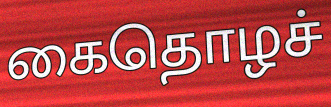
கைதொழச்